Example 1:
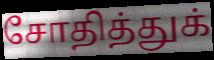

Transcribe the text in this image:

சோதித்துக்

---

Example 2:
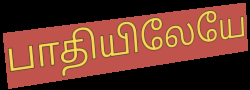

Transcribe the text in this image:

பாதியிலேயே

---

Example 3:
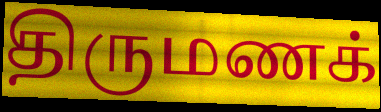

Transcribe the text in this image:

திருமணக்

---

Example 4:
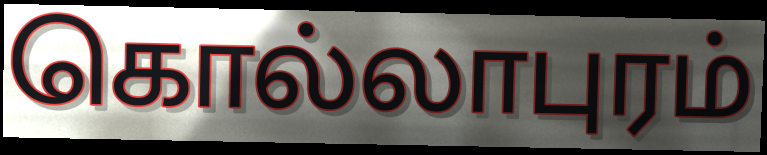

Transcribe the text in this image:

கொல்லாபுரம்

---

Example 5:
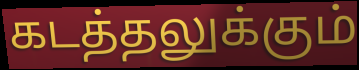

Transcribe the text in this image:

கடத்தலுக்கும்